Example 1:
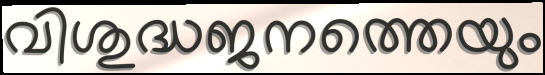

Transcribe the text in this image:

വിശുദ്ധജനത്തെയും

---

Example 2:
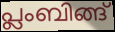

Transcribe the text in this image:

പ്ലംബിങ്ങ്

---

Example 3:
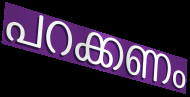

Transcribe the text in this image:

പറക്കണം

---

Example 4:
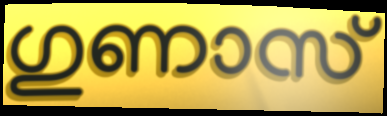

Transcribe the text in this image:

ഗുണാസ്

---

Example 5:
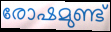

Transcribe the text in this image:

രോഷമുണ്ട്